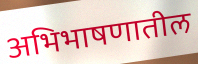
अभिभाषणातील